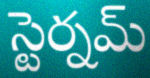
స్టెర్నమ్